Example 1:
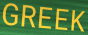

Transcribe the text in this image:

GREEK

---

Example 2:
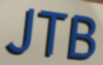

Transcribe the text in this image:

JTB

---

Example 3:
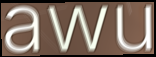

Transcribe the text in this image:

awu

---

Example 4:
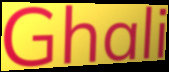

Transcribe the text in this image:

Ghali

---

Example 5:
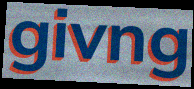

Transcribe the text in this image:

givng